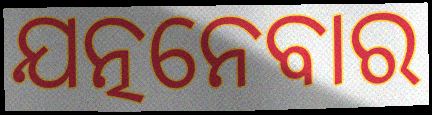
ଯତ୍ନନେବାର